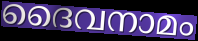
ദൈവനാമം